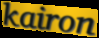
kairon